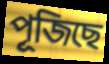
পূজিছে